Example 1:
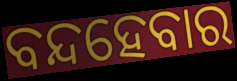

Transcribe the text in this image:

ବନ୍ଦହେବାର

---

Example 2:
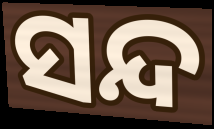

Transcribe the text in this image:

ସନ୍ଦ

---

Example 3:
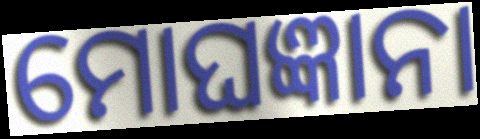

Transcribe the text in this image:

ମୋଘଜ୍ଞାନା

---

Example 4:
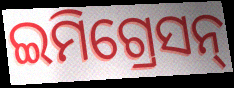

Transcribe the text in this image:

ଇମିଗ୍ରେସନ୍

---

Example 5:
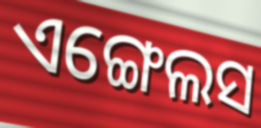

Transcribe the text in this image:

ଏଙ୍ଗେଲସ